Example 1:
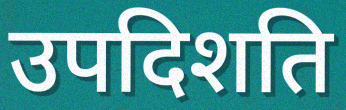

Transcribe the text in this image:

उपदिशति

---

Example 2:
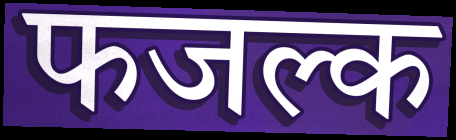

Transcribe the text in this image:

फजल्क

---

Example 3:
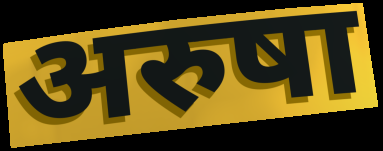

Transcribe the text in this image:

अरुषा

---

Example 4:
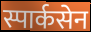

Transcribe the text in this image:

स्पार्कसेन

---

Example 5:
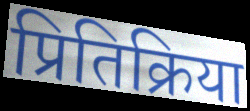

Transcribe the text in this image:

प्रितिक्रिया